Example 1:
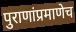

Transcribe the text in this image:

पुराणांप्रमाणेच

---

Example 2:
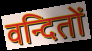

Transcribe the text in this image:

वन्दितों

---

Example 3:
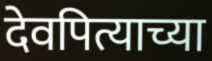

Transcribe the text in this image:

देवपित्याच्या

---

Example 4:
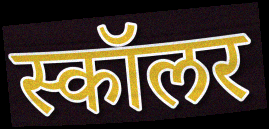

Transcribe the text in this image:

स्कॉलर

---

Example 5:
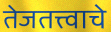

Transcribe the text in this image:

तेजतत्त्वाचे